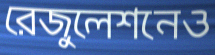
রেজুলেশনেও